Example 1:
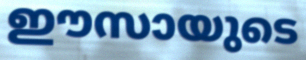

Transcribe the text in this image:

ഈസായുടെ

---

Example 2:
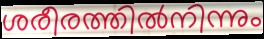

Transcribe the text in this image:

ശരീരത്തിൽനിന്നും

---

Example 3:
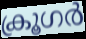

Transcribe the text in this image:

ക്രൂഗർ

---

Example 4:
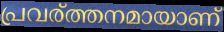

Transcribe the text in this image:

പ്രവര്ത്തനമായാണ്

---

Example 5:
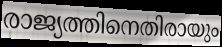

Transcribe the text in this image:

രാജ്യത്തിനെതിരായും